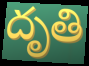
దృతి